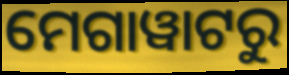
ମେଗାୱାଟରୁ